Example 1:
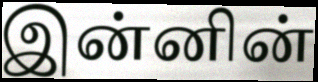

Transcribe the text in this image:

இன்னின்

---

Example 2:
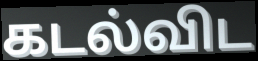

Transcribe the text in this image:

கடல்விட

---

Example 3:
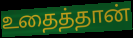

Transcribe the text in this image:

உதைத்தான்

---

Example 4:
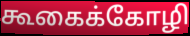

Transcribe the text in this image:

கூகைக்கோழி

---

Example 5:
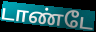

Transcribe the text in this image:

டாண்டே